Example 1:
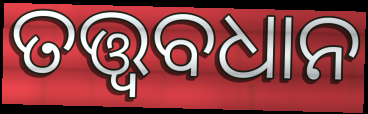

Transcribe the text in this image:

ତତ୍ତ୍ୱବଧାନ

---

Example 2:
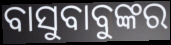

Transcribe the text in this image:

ବାସୁବାବୁଙ୍କର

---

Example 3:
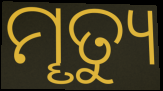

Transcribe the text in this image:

ମୄତ୍ୟୁ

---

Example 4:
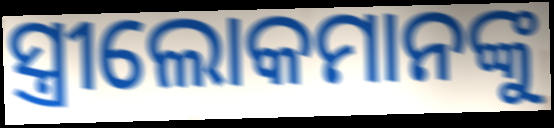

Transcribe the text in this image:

ସ୍ତ୍ରୀଲୋକମାନଙ୍କୁ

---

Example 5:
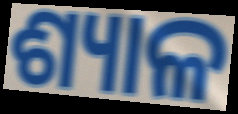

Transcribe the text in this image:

ଶ୍ୟାଳ